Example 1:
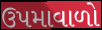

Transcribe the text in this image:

ઉપમાવાળો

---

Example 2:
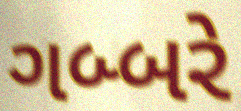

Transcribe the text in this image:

ગબ્બરે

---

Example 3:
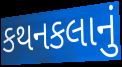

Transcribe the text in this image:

કથનકલાનું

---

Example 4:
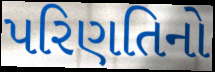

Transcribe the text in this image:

પરિણતિનો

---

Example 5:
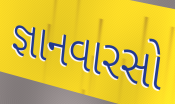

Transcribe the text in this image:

જ્ઞાનવારસો